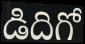
డిదిగో